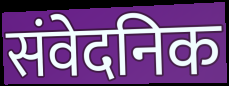
संवेदनिक